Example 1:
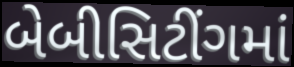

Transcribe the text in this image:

બેબીસિટીંગમાં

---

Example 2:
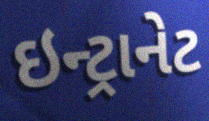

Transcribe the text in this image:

ઇન્ટ્રાનેટ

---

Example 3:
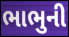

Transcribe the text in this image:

ભાભુની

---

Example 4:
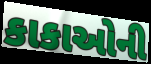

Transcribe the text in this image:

કાકાઓની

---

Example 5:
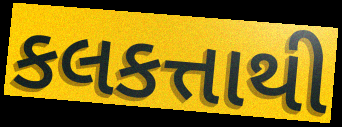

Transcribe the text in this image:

કલકત્તાથી